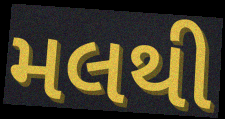
મલથી